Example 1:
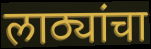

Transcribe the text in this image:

लाठ्यांचा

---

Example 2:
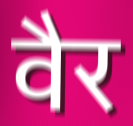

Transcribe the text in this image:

वैर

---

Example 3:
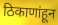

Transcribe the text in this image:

ठिकाणांहून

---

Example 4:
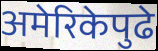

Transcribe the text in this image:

अमेरिकेपुढे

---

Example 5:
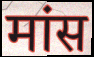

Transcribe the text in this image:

मांस